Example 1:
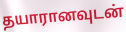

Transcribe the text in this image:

தயாரானவுடன்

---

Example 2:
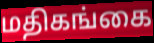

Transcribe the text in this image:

மதிகங்கை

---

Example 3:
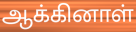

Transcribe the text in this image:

ஆக்கினாள்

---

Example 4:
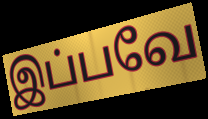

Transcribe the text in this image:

இப்பவே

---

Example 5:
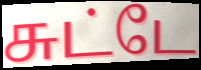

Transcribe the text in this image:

சுட்டே